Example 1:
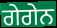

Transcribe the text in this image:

ਗੇਗੇਨ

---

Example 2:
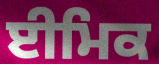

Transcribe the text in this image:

ਈਮਿਕ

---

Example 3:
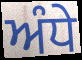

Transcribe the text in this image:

ਅੰਧੇ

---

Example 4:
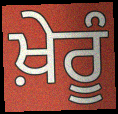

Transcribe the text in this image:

ਖ਼ੇਰੂੰ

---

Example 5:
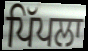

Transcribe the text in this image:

ਪਿੱਪਲਾ